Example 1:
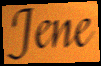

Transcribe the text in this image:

Jene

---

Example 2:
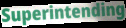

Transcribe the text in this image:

Superintending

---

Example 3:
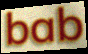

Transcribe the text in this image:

bab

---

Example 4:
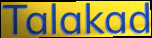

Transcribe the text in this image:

Talakad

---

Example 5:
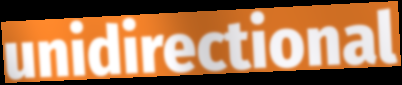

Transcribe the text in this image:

unidirectional